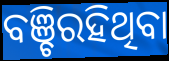
ବଞ୍ଚିରହିଥିବା